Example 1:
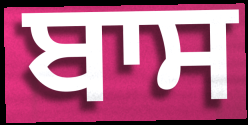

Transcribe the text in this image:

ਬਾਸ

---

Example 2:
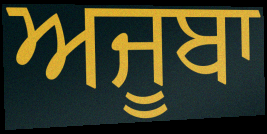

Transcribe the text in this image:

ਅਜੂਬਾ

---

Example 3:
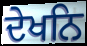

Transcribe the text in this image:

ਦੇਖਨਿ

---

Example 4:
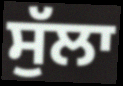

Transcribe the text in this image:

ਸੁੱਲਾ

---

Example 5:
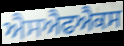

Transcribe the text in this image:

ਐਸਐਫਐਕਸ